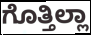
ಗೊತ್ತಿಲ್ಲಾ